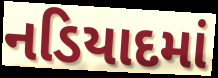
નડિયાદમાં